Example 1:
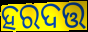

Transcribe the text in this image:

ହରଦତ୍ତ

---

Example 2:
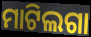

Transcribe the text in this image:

ମାଟିଲଗା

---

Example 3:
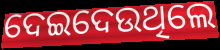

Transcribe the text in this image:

ଦେଇଦେଉଥିଲେ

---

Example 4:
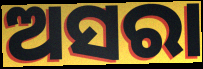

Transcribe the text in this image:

ଅସରା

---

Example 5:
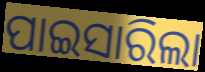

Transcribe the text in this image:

ପାଇସାରିଲା